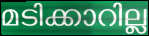
മടിക്കാറില്ല